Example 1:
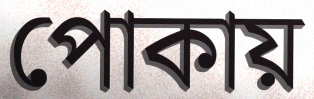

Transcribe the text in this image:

পোকায়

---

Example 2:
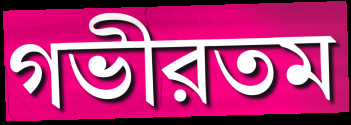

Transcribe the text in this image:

গভীরতম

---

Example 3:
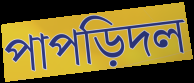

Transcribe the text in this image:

পাপড়িদল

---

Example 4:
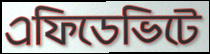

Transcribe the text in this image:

এফিডেভিটে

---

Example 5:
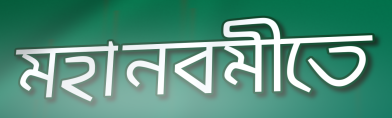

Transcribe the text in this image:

মহানবমীতে